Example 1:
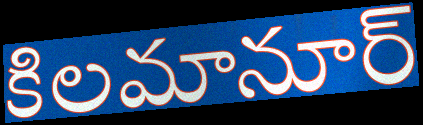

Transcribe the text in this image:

కిలమానూర్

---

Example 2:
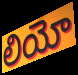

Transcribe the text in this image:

లియో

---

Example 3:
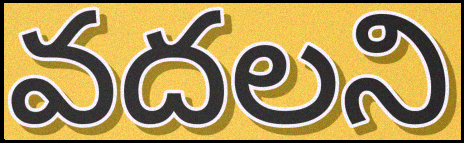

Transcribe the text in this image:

వదలని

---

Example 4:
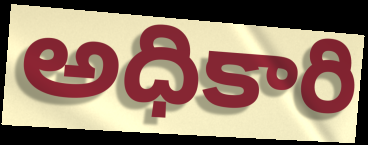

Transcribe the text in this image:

అధికారి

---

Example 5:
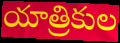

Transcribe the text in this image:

యాత్రికుల